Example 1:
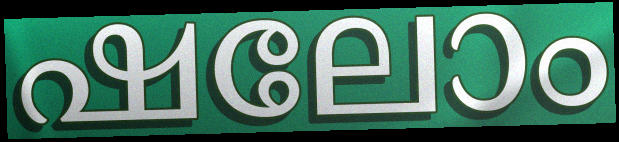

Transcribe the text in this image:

ഷലോം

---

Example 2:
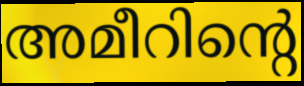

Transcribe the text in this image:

അമീറിന്റെ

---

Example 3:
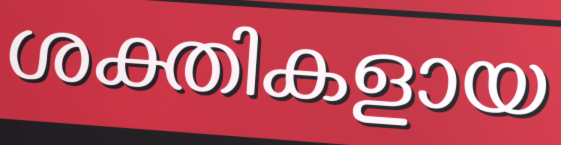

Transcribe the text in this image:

ശക്തികളായ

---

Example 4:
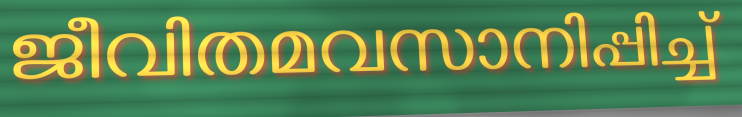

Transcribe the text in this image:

ജീവിതമവസാനിപ്പിച്ച്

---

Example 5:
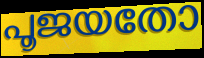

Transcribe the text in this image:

പൂജയതോ